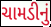
ચામડીનું